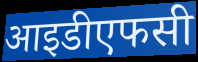
आइडीएफसी